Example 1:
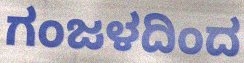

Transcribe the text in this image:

ಗಂಜಳದಿಂದ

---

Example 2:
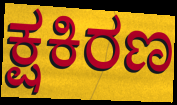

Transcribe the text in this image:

ಕ್ಷಕಿರಣ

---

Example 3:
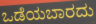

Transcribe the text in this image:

ಒಡೆಯಬಾರದು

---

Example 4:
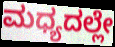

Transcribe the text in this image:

ಮಧ್ಯದಲ್ಲೇ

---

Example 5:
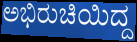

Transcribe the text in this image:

ಅಭಿರುಚಿಯಿದ್ದ